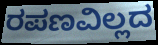
ರಪಣವಿಲ್ಲದ